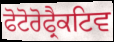
ਫੋਟੋਰੋਫ੍ਰੈਕਟਿਵ